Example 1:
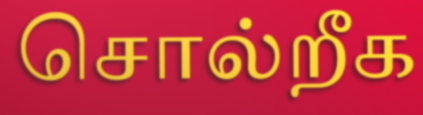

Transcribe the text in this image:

சொல்றீக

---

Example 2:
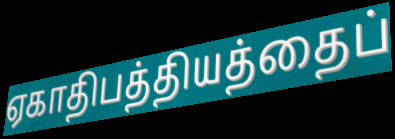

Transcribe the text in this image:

ஏகாதிபத்தியத்தைப்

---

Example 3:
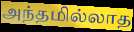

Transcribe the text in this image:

அந்தமில்லாத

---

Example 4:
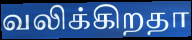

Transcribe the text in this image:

வலிக்கிறதா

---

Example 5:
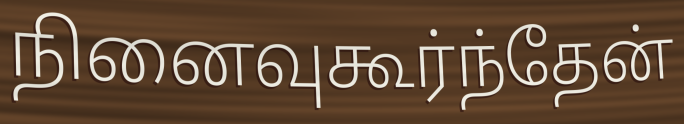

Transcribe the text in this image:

நினைவுகூர்ந்தேன்